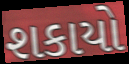
શકાયો